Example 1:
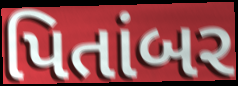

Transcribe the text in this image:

પિતાંબર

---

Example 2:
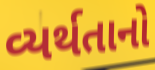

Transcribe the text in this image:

વ્યર્થતાનો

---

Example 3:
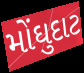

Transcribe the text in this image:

મોંઘુદાટ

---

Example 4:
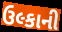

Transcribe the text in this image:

ઉલ્કાની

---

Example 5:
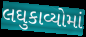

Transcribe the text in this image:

લઘુકાવ્યોમાં